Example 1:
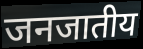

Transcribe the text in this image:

जनजातीय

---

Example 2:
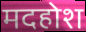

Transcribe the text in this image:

मदहोश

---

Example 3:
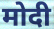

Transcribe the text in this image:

मोदी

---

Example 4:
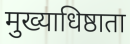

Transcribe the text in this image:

मुख्याधिष्ठाता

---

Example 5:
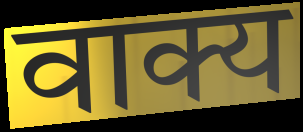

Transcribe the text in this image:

वाक्य